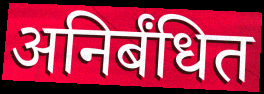
अनिर्बंधित